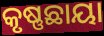
କୃଷ୍ଣଛାୟା